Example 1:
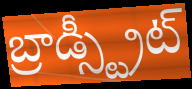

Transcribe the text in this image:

బ్రాడ్స్ట్రీట్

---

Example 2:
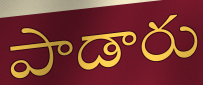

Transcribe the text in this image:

పాడారు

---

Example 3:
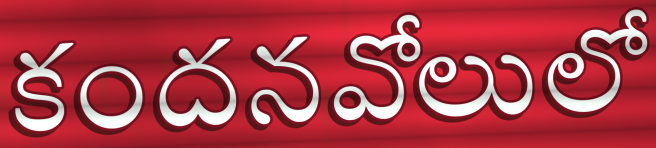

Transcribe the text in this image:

కందనవోలులో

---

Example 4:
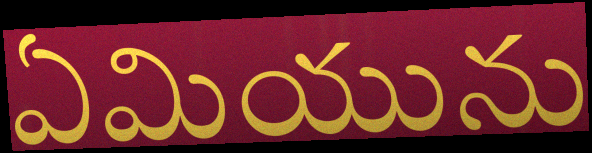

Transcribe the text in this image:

ఏమియును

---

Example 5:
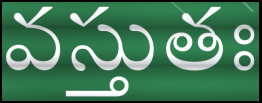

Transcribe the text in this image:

వస్తుతః